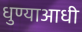
धुण्याआधी